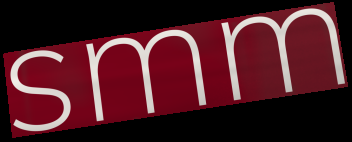
smm